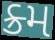
ક્ર્મ